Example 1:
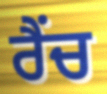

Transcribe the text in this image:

ਰੈਂਚ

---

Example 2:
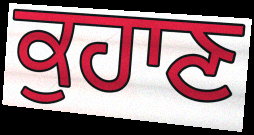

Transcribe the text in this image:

ਕੁਹਾਣ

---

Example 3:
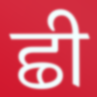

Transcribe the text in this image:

ਛੀ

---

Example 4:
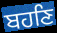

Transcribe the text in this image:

ਬਹਣਿ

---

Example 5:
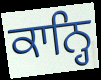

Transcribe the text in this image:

ਕਾਨ੍ਹਿ